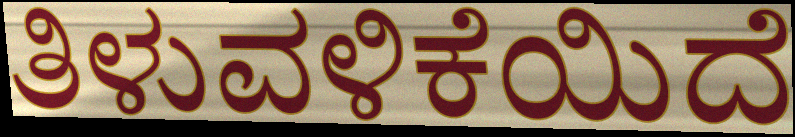
ತಿಳುವಳಿಕೆಯಿದೆ